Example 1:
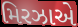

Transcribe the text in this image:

મિરઝાએ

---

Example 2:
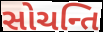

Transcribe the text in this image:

સોચન્તિ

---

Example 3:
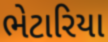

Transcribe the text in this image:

ભેટારિયા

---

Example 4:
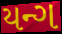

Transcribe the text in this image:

યન્ગ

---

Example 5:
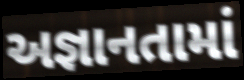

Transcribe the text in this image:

અજ્ઞાનતામાં